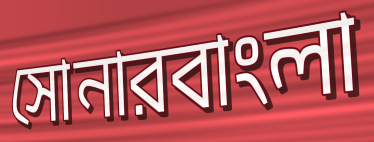
সোনারবাংলা